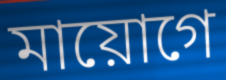
মায়োগে